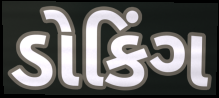
ડોકિંગ